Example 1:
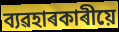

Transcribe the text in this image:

ব্যৱহাৰকাৰীয়ে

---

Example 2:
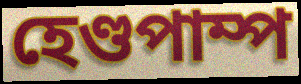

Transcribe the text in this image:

হেণ্ডপাম্প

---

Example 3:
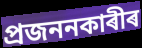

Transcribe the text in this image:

প্ৰজননকাৰীৰ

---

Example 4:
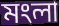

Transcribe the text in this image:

মংলা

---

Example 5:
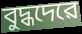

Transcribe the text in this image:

বুদ্ধদেৱে